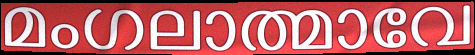
മംഗലാത്മാവേ